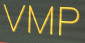
VMP